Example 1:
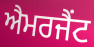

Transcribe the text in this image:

ਐਮਰਜੈਂਟ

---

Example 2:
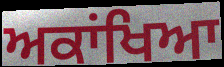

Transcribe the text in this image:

ਅਕਾਂਖਿਆ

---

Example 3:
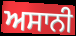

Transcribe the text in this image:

ਅਸਾਨੀ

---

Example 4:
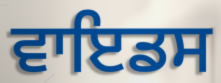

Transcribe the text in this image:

ਵਾਇਡਸ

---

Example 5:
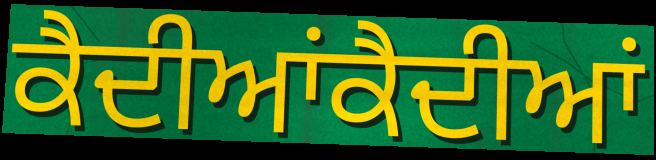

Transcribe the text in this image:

ਕੈਦੀਆਂਕੈਦੀਆਂ